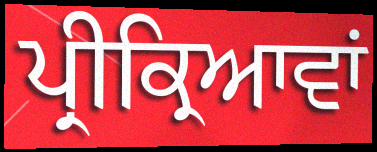
ਪ੍ਰੀਕ੍ਰਿਆਵਾਂ